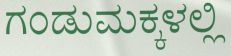
ಗಂಡುಮಕ್ಕಳಲ್ಲಿ